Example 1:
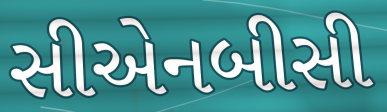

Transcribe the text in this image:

સીએનબીસી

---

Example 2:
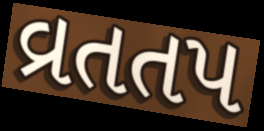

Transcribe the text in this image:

વ્રતતપ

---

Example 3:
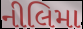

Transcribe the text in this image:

નીલિમા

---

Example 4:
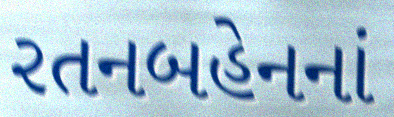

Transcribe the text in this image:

રતનબહેનનાં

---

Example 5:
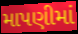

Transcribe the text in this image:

માપણીમાં